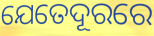
ଯେତେଦୂରରେ